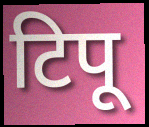
टिपू